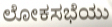
ಲೋಕಸಭೆಯು